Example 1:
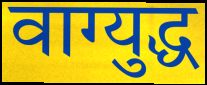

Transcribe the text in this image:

वाग्युद्ध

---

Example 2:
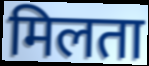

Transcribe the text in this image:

मिलता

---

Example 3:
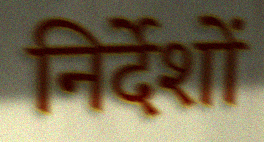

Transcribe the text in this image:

निर्देशों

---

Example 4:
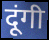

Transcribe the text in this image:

दूंगी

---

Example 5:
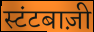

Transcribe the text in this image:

स्टंटबाज़ी